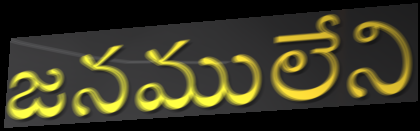
జనములేని